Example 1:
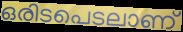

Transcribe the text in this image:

ഒരിടപെടലാണ്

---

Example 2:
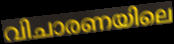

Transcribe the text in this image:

വിചാരണയിലെ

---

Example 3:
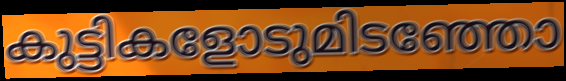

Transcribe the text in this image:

കുട്ടികളോടുമിടഞ്ഞോ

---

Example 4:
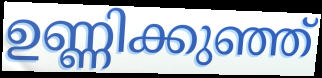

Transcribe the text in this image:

ഉണ്ണിക്കുഞ്ഞ്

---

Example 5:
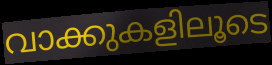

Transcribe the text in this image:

വാക്കുകളിലൂടെ